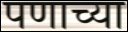
पणाच्या